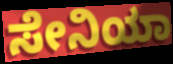
ಸೇನಿಯಾ